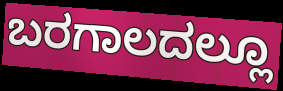
ಬರಗಾಲದಲ್ಲೂ